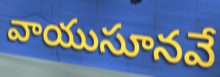
వాయుసూనవే